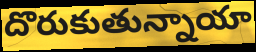
దొరుకుతున్నాయా